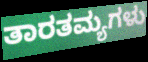
ತಾರತಮ್ಯಗಳು